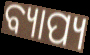
ବ୍ଯାପ୍ୟ